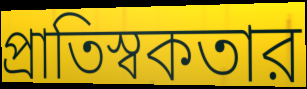
প্রাতিস্বকতার